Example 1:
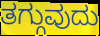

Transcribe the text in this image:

ತಗ್ಗುವುದು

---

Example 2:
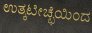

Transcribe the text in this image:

ಉತ್ಕಟೇಚ್ಛೆಯಿಂದ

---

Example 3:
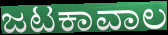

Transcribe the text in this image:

ಜಟಕಾವಾಲ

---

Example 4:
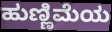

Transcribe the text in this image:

ಹುಣ್ಣಿಮೆಯ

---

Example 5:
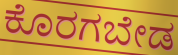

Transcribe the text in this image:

ಕೊರಗಬೇಡ